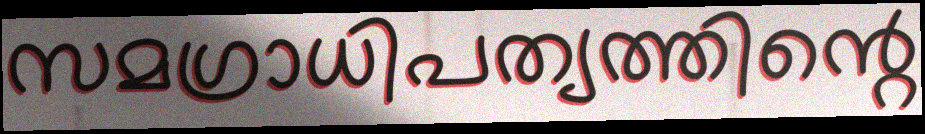
സമഗ്രാധിപത്യത്തിന്റെ